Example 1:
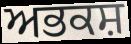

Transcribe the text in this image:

ਅਭਕਸ਼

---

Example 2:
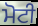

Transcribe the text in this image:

ਮੋਟੀ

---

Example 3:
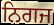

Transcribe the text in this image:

ਨਿਗਜ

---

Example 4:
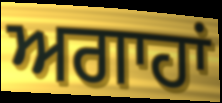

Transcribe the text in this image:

ਅਗਾਹਾਂ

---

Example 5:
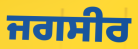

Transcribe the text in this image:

ਜਗਸੀਰ